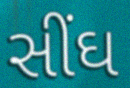
સીંઘ